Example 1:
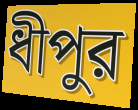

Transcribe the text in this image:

ধীপুর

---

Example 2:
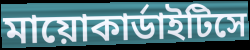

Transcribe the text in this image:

মায়োকার্ডাইটিসে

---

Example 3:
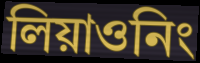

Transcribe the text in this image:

লিয়াওনিং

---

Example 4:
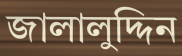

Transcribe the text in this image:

জালালুদ্দিন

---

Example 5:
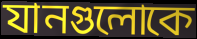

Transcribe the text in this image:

যানগুলোকে